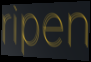
ripen